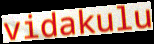
vidakulu